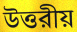
উত্তরীয়